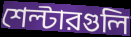
শেল্টারগুলি